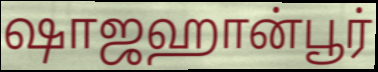
ஷாஜஹான்பூர்